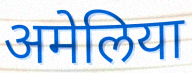
अमेलिया